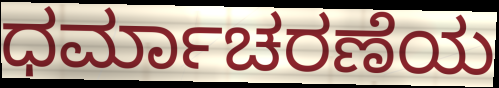
ಧರ್ಮಾಚರಣೆಯ